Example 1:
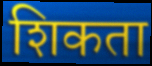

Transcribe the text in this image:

शिकता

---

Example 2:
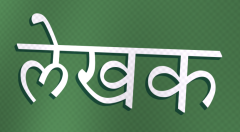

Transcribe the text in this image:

लेखक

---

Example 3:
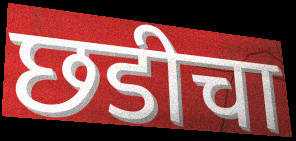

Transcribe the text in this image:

छडीचा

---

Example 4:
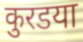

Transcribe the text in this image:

कुरडया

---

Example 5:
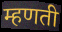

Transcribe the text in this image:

म्हणती